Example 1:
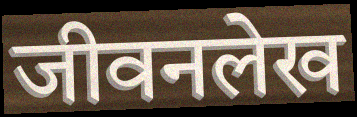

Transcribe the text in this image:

जीवनलेख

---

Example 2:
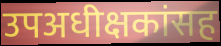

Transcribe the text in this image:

उपअधीक्षकांसह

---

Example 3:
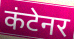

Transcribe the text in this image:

कंटेनर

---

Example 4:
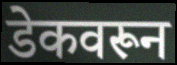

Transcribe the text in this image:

डेकवरून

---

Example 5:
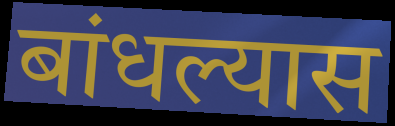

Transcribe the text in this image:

बांधल्यास